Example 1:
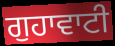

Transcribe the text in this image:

ਗੁਹਾਵਾਟੀ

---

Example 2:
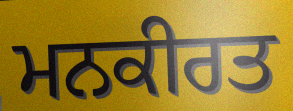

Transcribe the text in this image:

ਮਨਕੀਰਤ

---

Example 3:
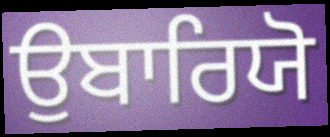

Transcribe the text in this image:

ਉਬਾਰਿਯੋ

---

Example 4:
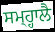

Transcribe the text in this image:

ਸਮ੍ਹ੍ਹਾਲੈ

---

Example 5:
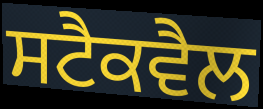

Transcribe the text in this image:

ਸਟੈਕਵੈਲ